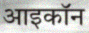
आइकॉन